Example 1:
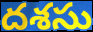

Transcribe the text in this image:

దశసు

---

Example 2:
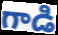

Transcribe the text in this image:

గాడి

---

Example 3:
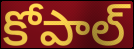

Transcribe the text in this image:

కోపాల్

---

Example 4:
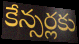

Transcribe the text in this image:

కేన్సర్లకు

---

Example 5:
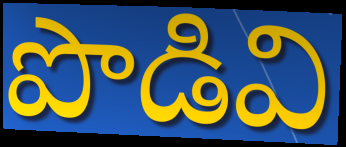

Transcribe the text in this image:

పొడివి